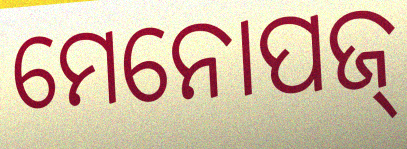
ମେନୋପଜ୍